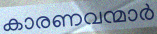
കാരണവന്മാർ